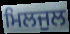
ਮਿਲਜੁਲ